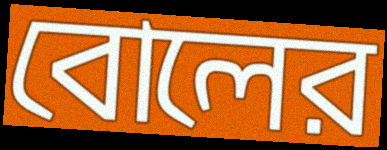
বোলের